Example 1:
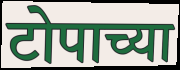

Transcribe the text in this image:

टोपाच्या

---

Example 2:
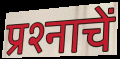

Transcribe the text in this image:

प्रश्नाचें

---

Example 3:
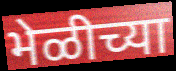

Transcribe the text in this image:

भेळीच्या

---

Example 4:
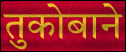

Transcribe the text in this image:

तुकोबाने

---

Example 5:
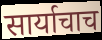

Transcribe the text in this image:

सार्याचाच